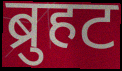
ब्रुहट